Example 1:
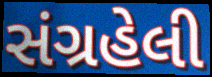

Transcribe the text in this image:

સંગ્રહેલી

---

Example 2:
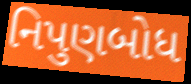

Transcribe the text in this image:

નિપુણબોધ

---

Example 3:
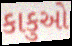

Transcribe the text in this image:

કાકુઓ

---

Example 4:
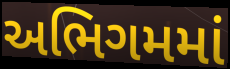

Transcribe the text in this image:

અભિગમમાં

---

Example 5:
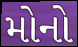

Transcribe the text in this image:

મોનો